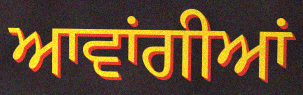
ਆਵਾਂਗੀਆਂ